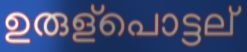
ഉരുള്പൊട്ടല്